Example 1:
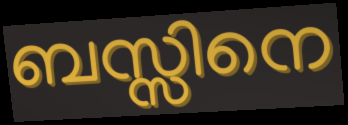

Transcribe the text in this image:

ബസ്സിനെ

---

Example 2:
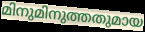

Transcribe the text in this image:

മിനുമിനുത്തതുമായ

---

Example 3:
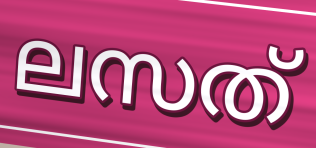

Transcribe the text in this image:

ലസത്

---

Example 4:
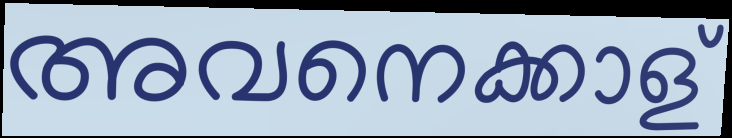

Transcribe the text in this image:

അവനെക്കാള്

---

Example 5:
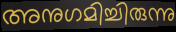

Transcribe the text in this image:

അനുഗമിച്ചിരുന്നു